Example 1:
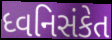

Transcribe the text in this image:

ધ્વનિસંકેત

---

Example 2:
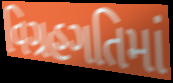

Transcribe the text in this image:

વિગ્રહગતિમાં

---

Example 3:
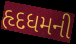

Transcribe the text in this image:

હૃદધમની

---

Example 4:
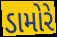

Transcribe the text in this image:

ડામોરે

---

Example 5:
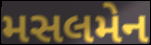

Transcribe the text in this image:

મસલમેન